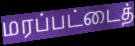
மரப்பட்டைத்